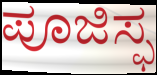
ಪೂಜಿಸ್ಫ